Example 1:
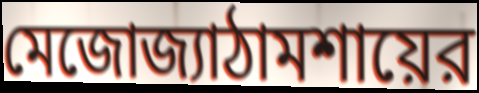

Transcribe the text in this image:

মেজোজ্যাঠামশায়ের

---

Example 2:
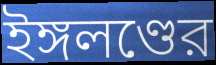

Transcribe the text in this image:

ইঙ্গলণ্ডের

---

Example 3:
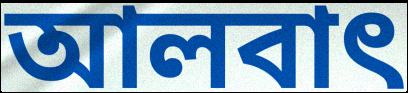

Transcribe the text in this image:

আলবাৎ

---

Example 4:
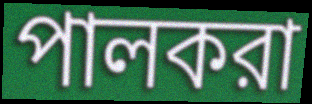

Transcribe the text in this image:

পালকরা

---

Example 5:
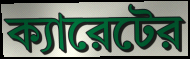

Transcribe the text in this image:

ক্যারেটের